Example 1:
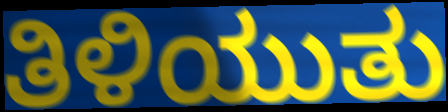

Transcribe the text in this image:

ತಿಳಿಯುತು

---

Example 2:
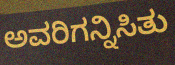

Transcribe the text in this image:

ಅವರಿಗನ್ನಿಸಿತು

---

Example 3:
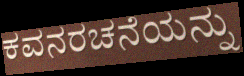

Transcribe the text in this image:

ಕವನರಚನೆಯನ್ನು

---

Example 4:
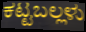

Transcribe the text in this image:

ಕಟ್ಟಬಲ್ಲಳು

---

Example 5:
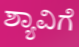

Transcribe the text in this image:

ಶ್ಯಾವಿಗೆ